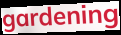
gardening